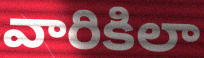
వారికిలా